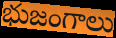
భుజంగాలు